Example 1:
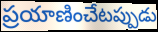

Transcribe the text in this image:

ప్రయాణించేటప్పుడు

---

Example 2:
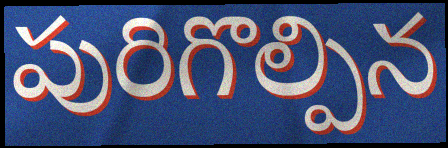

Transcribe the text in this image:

పురిగొల్పిన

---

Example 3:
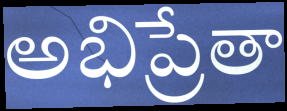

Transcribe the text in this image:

అభిప్రేతా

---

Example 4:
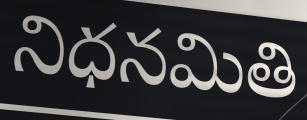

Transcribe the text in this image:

నిధనమితి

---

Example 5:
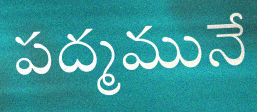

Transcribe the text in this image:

పద్మమునే